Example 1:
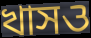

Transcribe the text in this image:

খাসও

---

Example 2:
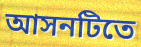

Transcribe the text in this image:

আসনটিতে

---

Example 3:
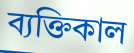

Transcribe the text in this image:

ব্যক্তিকাল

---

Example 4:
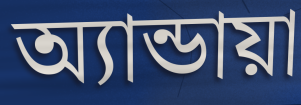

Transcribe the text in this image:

অ্যান্ডায়া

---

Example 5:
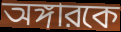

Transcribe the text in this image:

অঙ্গারকে